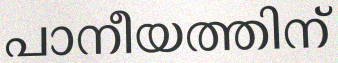
പാനീയത്തിന്